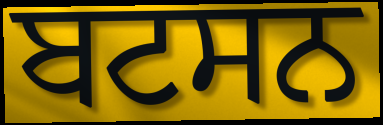
ਬਟਸਨ